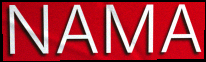
NAMA